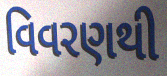
વિવરણથી